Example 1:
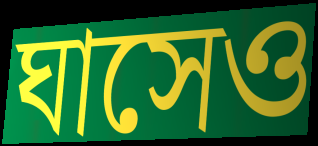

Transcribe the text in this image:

ঘাসেও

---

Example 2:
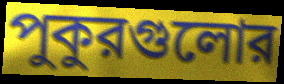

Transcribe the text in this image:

পুকুরগুলোর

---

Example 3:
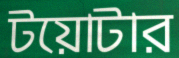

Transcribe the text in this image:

টয়োটার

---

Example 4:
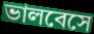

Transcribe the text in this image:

ভালবেসে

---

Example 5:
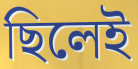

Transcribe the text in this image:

ছিলেই